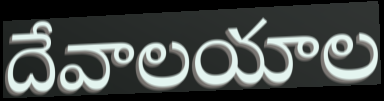
దేవాలయాల